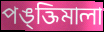
পঙ্‌ক্তিমালা